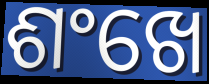
ଶଂଖେ